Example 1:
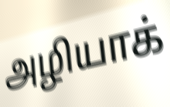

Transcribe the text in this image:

அழியாக்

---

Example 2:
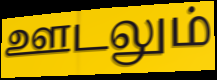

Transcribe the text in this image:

ஊடலும்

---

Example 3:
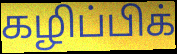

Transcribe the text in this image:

கழிப்பிக்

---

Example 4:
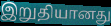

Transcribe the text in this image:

இறுதியானது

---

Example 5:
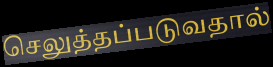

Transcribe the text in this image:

செலுத்தப்படுவதால்